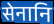
सेनानि